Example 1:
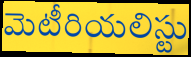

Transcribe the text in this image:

మెటీరియలిస్టు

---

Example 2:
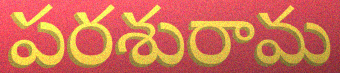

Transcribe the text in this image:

పరశురామ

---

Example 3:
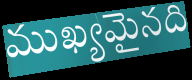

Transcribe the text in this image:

ముఖ్యమైనది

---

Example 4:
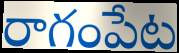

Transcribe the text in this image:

రాగంపేట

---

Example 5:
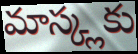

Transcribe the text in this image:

మాస్క్లకు